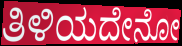
ತಿಳಿಯದೇನೋ